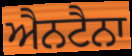
ਐਨਟੈਨਾ